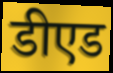
डीएड